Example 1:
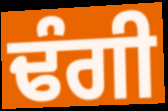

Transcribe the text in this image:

ਢੰਗੀ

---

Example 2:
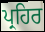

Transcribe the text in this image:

ਪ੍ਰਹਿਰ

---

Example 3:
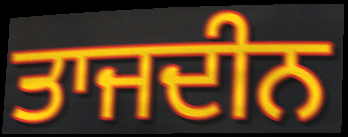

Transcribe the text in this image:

ਤਾਜਦੀਨ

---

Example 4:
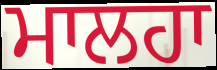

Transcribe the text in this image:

ਮਾਲਹਾ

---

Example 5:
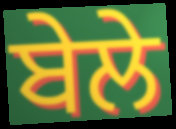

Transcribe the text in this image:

ਬੇਲੇ